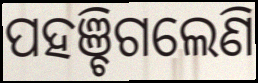
ପହଞ୍ଚିଗଲେଣି